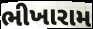
ભીખારામ